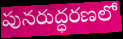
పునరుద్ధరణలో